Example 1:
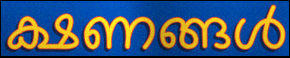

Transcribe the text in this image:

ക്ഷണങ്ങൾ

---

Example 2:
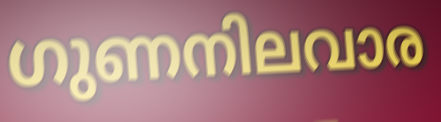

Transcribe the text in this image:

ഗുണനിലവാര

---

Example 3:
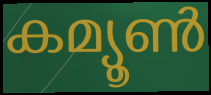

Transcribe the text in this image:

കമ്യൂൺ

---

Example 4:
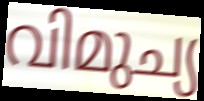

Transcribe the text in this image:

വിമുച്യ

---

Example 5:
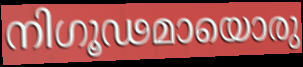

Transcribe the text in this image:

നിഗൂഢമായൊരു